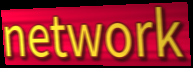
network